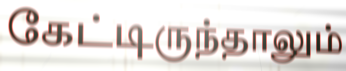
கேட்டிருந்தாலும்